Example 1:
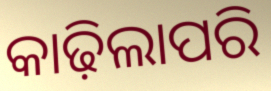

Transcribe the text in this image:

କାଢ଼ିଲାପରି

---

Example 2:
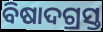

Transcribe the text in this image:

ବିଷାଦଗ୍ରସ୍ତ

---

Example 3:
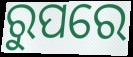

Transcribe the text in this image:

ରୁପରେ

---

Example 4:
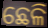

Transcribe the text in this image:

ଛେଳି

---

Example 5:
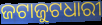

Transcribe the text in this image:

ଜଟାଜୁଟଧାରୀ